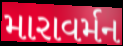
મારાવર્મન